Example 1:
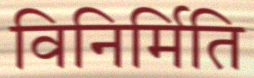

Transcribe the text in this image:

विनिर्मिति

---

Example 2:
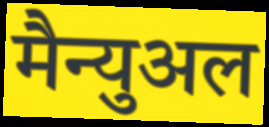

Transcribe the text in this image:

मैन्युअल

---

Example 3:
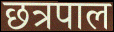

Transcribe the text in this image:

छत्रपाल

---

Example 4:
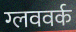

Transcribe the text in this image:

ग्लववर्क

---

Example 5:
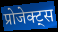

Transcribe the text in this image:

प्रोजेक्ट्स